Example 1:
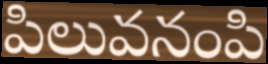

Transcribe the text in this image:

పిలువనంపి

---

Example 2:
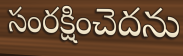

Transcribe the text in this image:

సంరక్షించెదను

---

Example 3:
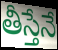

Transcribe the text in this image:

తీస్తేనే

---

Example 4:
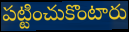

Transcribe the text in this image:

పట్టించుకొంటారు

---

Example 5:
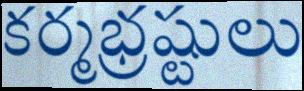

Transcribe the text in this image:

కర్మభ్రష్టులు